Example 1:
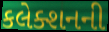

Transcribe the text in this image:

કલેક્શનની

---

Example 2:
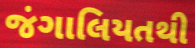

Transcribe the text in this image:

જંગાલિયતથી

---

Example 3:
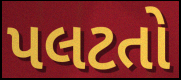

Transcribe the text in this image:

પલટતો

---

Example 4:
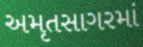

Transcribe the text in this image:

અમૃતસાગરમાં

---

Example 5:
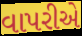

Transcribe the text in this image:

વાપરીએ